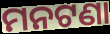
ମନଟଣା